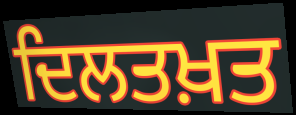
ਦਿਲਤਖ਼ਤ